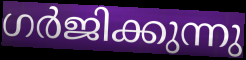
ഗർജിക്കുന്നു